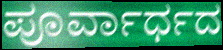
ಪೂರ್ವಾರ್ಧದ